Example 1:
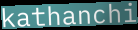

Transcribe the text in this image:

kathanchi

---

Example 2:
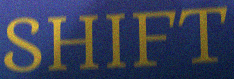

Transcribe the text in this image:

SHIFT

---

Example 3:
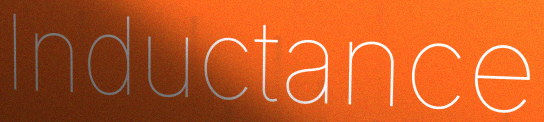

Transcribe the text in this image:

Inductance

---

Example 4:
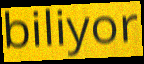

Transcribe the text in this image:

biliyor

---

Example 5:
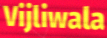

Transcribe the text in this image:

Vijliwala